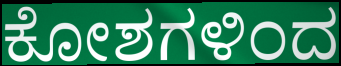
ಕೋಶಗಳಿಂದ